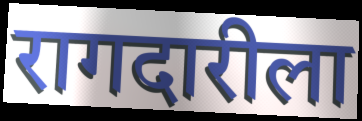
रागदारीला